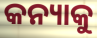
କନ୍ୟାକୁ